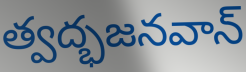
త్వద్భజనవాన్